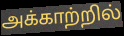
அக்காற்றில்